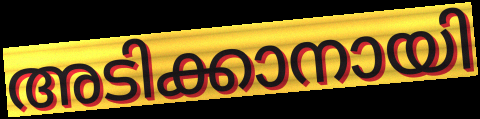
അടിക്കാനായി